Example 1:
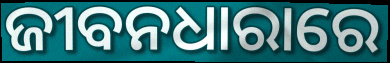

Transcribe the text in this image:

ଜୀବନଧାରାରେ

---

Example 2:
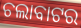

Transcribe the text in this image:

ଚଲାବାଟର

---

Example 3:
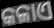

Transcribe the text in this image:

କଳାଏ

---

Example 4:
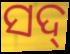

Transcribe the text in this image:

ସଦ୍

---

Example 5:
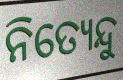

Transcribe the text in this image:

ନିତ୍ୟେନ୍ଦୁ